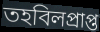
তহবিলপ্রাপ্ত